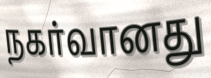
நகர்வானது